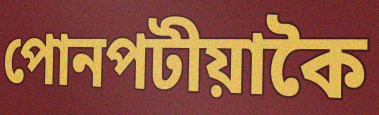
পোনপটীয়াকৈ